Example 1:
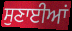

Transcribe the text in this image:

ਸੁਣਾਈਆਂ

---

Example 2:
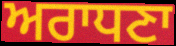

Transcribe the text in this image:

ਅਰਾਧਣਾ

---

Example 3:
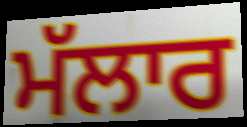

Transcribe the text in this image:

ਮੱਲਾਰ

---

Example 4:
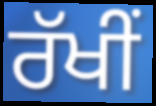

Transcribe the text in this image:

ਰੱਖੀਂ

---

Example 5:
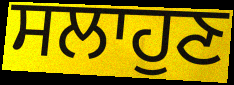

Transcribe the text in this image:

ਸਲਾਹੁਣ